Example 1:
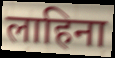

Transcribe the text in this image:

लाहिना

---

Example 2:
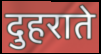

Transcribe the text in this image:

दुहराते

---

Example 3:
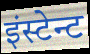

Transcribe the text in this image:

इंस्टेन्ट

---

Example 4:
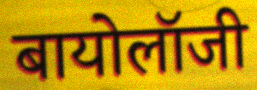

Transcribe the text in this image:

बायोलॉजी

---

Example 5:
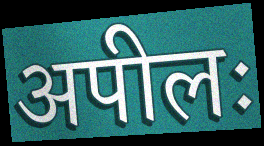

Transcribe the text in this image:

अपीलः